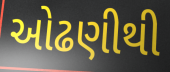
ઓઢણીથી